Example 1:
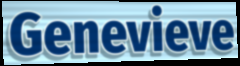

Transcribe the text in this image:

Genevieve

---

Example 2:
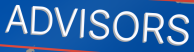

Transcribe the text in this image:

ADVISORS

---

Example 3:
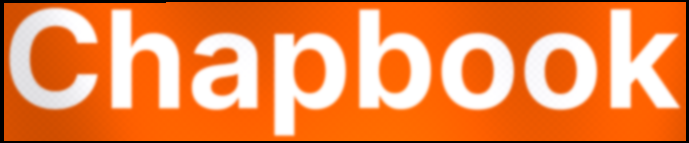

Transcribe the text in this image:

Chapbook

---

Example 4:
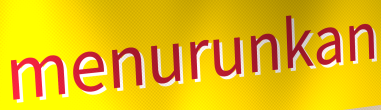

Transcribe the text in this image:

menurunkan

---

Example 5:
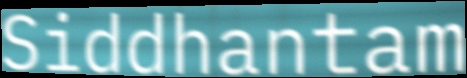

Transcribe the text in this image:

Siddhantam